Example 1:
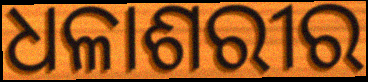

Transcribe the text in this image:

ଧଳାଶରୀର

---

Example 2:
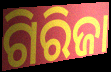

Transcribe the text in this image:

ଗିରିଜା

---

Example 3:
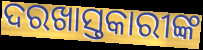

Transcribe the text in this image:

ଦରଖାସ୍ତକାରୀଙ୍କ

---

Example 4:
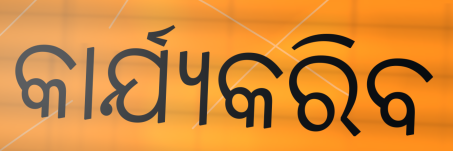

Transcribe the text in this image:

କାର୍ଯ୍ୟକରିବ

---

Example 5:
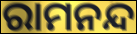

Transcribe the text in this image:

ରାମନନ୍ଦ